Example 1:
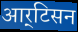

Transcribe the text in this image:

आर्टिसन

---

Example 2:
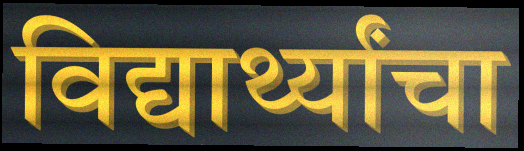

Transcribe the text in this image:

विद्यार्थ्यांचा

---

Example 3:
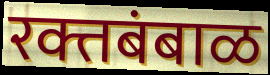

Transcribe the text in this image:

रक्तबंबाळ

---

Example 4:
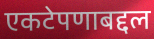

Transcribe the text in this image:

एकटेपणाबद्दल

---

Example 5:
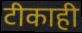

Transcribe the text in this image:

टीकाही